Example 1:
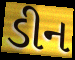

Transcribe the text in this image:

ડીન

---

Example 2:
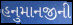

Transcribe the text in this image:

હનુમાનજીની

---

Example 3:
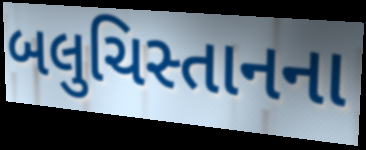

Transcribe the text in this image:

બલુચિસ્તાનના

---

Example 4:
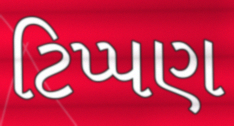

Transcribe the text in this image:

ટિપ્પણ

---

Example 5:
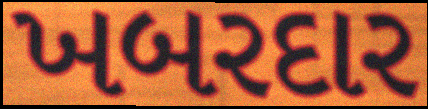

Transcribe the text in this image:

ખબરદાર